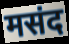
मसंद